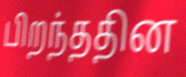
பிறந்ததின